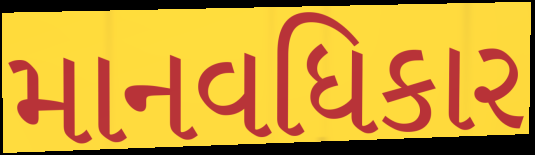
માનવધિકાર